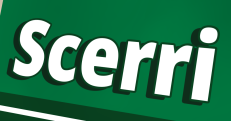
Scerri